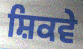
ਸ਼ਿਕਵੇ